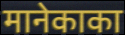
मानेकाका